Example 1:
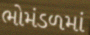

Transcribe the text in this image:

ભોમંડળમાં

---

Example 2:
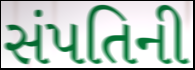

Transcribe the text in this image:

સંપતિની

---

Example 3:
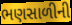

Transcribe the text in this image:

ભણસાળીની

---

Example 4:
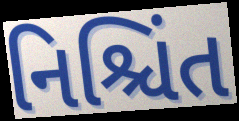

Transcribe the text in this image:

નિશ્ચિંત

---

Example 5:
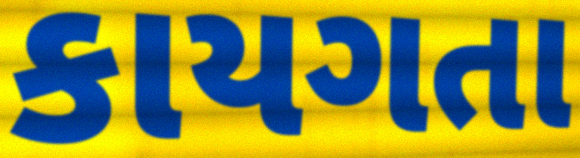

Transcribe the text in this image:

કાયગતા